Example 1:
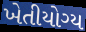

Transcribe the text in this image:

ખેતીયોગ્ય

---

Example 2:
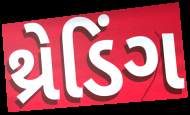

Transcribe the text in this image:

થ્રેડિંગ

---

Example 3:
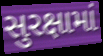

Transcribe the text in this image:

સુરક્ષામાં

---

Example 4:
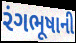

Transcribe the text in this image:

રંગભૂષાની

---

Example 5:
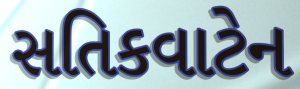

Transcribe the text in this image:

સતિકવાટેન